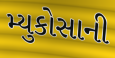
મ્યુકોસાની